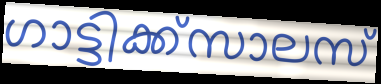
ഗാട്ടിക്ക്സാലസ്